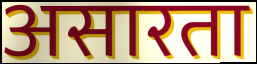
असारता